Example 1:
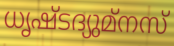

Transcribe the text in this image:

ധൃഷ്ടദ്യുമ്നസ്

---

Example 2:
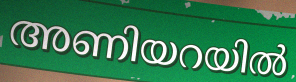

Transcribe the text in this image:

അണിയറയിൽ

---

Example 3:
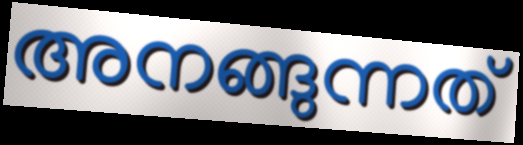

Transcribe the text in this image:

അനങ്ങുന്നത്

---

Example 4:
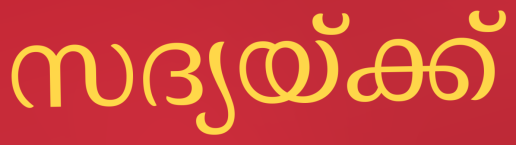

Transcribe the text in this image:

സദ്യയ്ക്ക്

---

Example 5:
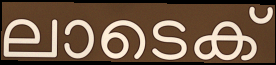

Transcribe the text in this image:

ലാടെക്